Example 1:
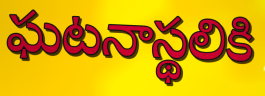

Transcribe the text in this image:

ఘటనాస్థలికి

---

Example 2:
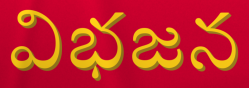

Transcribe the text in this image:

విభజన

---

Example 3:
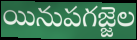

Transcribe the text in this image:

యినుపగజ్జెల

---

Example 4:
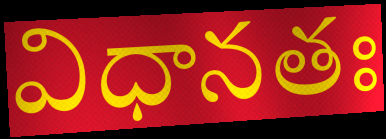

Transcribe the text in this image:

విధానతః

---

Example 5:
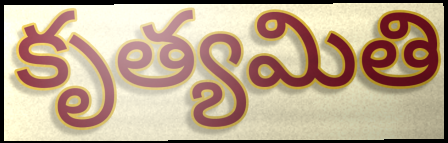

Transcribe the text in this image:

కృత్యమితి